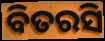
ବିତରସି